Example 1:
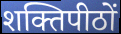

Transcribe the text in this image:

शक्तिपीठों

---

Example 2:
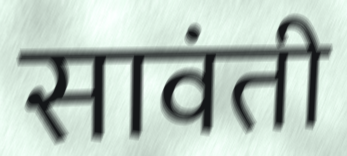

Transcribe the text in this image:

सावंती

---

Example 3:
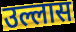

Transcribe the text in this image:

उल्लास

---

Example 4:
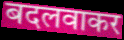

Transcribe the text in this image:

बदलवाकर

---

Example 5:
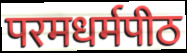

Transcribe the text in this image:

परमधर्मपीठ